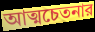
আত্মচেতনার